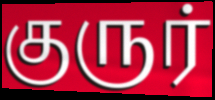
குருர்